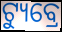
ଟ୍ୟୁବ୍ରେ